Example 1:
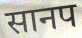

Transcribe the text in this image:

सानप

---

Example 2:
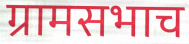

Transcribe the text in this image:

ग्रामसभाच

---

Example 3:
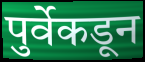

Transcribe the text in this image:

पुर्वेकडून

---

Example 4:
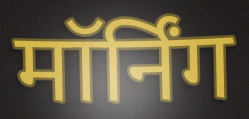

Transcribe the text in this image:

मॉर्निंग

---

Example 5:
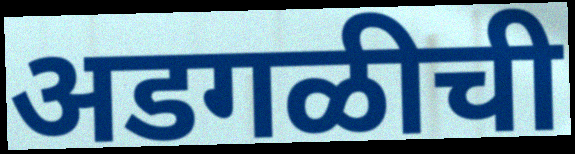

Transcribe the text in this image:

अडगळीची